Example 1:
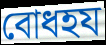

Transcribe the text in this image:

বোধহয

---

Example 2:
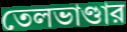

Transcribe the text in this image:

তেলভাণ্ডার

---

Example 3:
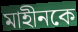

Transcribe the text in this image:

মাহীনকে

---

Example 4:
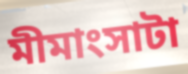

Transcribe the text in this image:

মীমাংসাটা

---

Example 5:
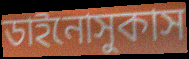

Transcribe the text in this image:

ডাইনোসুকাস